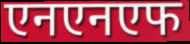
एनएनएफ